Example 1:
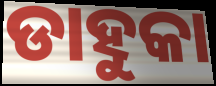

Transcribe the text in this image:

ଡାହୁକା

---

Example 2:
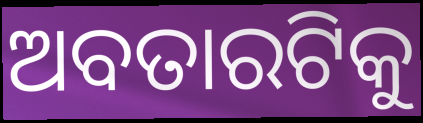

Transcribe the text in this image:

ଅବତାରଟିକୁ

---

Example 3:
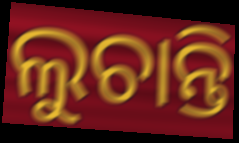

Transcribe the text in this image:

ଲୁଚାନ୍ତି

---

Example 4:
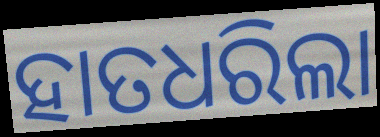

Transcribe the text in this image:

ହାତଧରିଲା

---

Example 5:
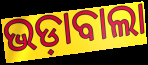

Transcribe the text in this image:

ଭଡ଼ାବାଲା